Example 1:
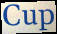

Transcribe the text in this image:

Cup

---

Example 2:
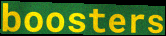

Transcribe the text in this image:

boosters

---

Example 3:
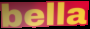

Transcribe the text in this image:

bella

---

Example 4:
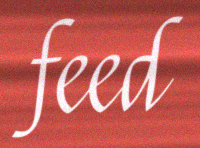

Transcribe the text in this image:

feed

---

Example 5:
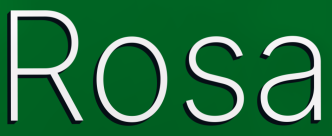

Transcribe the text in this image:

Rosa